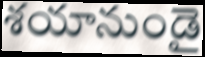
శయానుండై